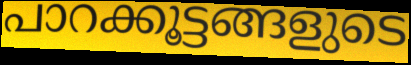
പാറക്കൂട്ടങ്ങളുടെ